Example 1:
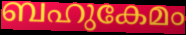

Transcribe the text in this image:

ബഹുകേമം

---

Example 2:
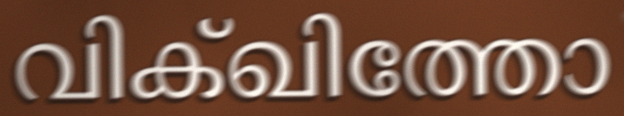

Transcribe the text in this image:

വിക്ഖിത്തോ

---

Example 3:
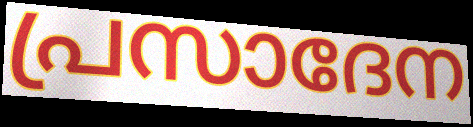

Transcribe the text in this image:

പ്രസാദേന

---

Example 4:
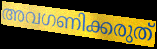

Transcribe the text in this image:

അവഗണിക്കരുത്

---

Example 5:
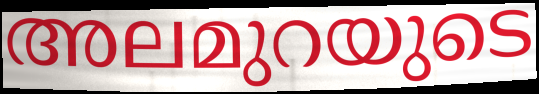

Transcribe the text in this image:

അലമുറയുടെ